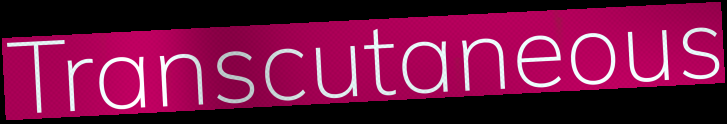
Transcutaneous